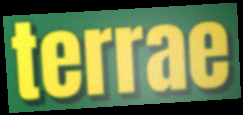
terrae